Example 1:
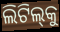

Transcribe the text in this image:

ଲିଟିଲ୍‌କୁ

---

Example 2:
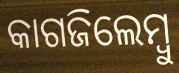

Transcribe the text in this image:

କାଗଜିଲେମ୍ବୁ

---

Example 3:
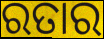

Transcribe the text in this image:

ରତାର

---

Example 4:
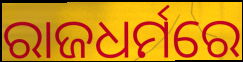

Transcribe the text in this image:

ରାଜଧର୍ମରେ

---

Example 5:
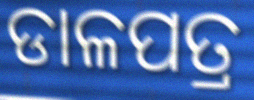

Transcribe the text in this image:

ଡାଳପତ୍ର